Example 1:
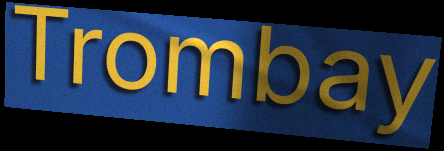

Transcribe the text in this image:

Trombay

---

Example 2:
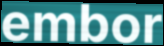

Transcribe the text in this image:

embor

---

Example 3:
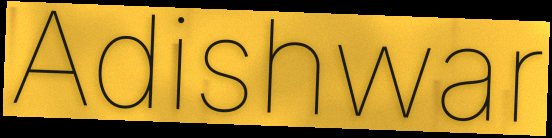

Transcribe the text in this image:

Adishwar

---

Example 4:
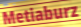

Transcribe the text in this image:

Metiaburz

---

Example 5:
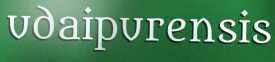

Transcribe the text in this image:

udaipurensis